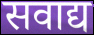
सवाद्य